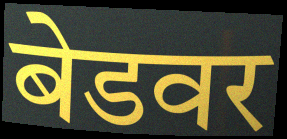
बेडवर